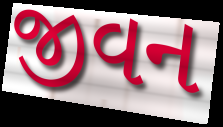
જીવન